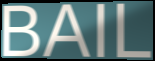
BAIL